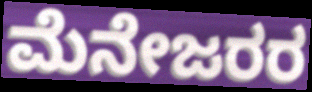
ಮೆನೇಜರರ